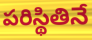
పరిస్థితినే